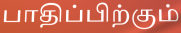
பாதிப்பிற்கும்